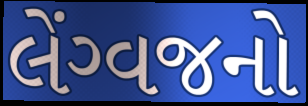
લેંગ્વજનો